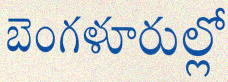
బెంగళూరుల్లో